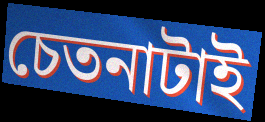
চেতনাটাই